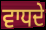
ਵਾਧਦੇ